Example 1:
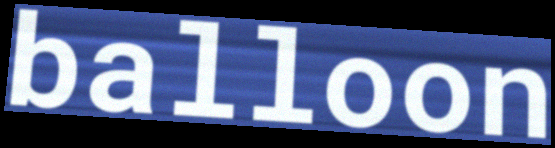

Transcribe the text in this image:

balloon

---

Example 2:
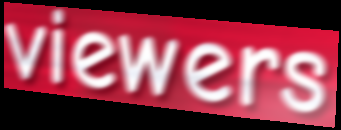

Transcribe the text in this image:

viewers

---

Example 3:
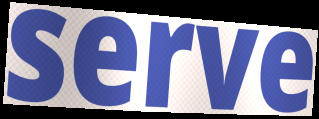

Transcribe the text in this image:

serve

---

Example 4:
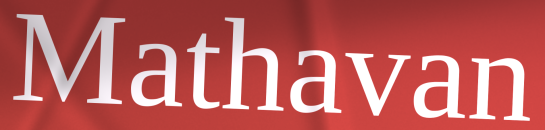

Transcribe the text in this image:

Mathavan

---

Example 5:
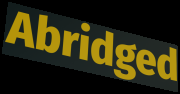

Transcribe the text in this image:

Abridged